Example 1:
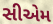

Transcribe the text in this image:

સીએમ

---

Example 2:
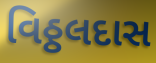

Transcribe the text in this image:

વિઠ્ઠલદાસ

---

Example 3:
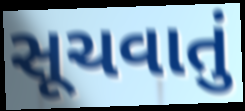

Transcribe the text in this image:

સૂચવાતું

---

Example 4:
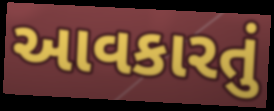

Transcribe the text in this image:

આવકારતું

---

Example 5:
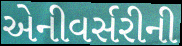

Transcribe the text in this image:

એનીવર્સરીની